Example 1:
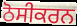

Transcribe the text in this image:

ਠੋਸੀਕਰਨ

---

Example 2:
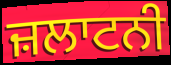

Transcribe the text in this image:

ਜ਼ਲਾਟਨੀ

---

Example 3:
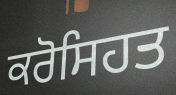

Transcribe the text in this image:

ਕਰੋਸਿਹਤ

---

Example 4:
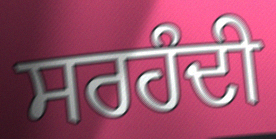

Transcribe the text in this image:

ਸਰਹੰਦੀ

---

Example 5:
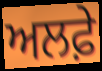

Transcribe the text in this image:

ਅਲਫ਼ੇ